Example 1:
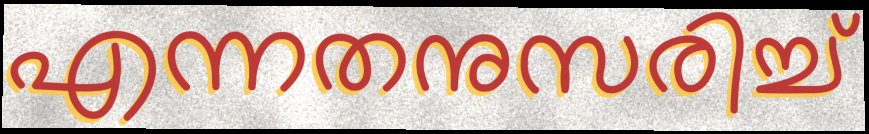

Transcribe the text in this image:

എന്നതനുസരിച്ച്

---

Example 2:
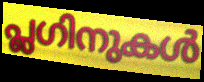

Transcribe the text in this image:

പ്ലഗിനുകൾ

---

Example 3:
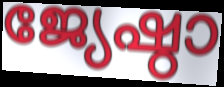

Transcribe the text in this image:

ജ്യേഷ്ഠാ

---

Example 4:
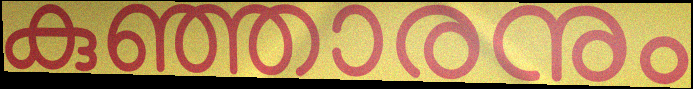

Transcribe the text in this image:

കുഞ്ഞാരനും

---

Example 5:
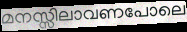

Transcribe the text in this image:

മനസ്സിലാവണപോലെ